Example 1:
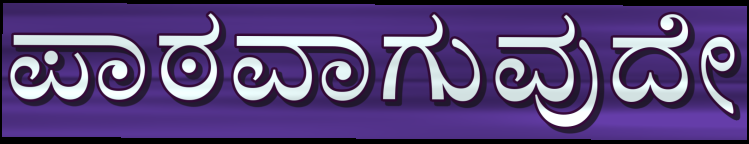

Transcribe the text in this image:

ಪಾಠವಾಗುವುದೇ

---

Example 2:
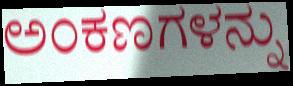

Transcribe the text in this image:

ಅಂಕಣಗಳನ್ನು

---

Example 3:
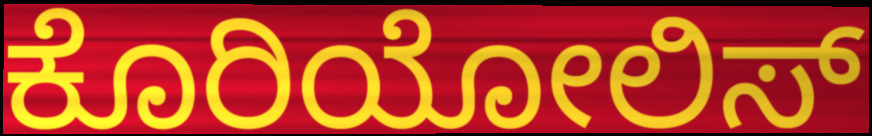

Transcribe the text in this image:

ಕೊರಿಯೋಲಿಸ್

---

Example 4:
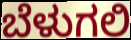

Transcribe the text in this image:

ಬೆಳುಗಲಿ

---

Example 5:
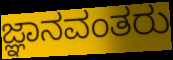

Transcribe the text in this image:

ಜ್ಞಾನವಂತರು